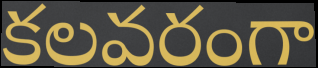
కలవరంగా